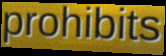
prohibits